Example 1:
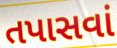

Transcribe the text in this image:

તપાસવાં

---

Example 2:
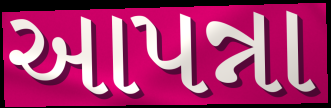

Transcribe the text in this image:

આપન્ના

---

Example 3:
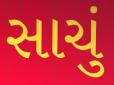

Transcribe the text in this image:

સાચું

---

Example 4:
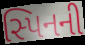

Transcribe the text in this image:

સ્પિનની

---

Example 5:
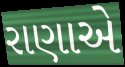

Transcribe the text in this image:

રાણાએ